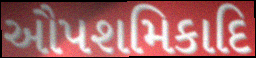
ઔપશમિકાદિ